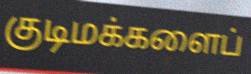
குடிமக்களைப்